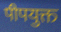
पीपयुक्त